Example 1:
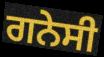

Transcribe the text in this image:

ਗਨੇਸੀ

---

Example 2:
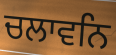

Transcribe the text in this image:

ਚਲਾਵਨਿ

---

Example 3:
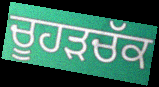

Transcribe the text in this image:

ਚੂਹਡ਼ਚੱਕ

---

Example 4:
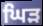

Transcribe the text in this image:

ਘਿੜ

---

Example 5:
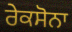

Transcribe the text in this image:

ਰੇਕਸੋਨਾ